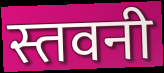
स्तवनी